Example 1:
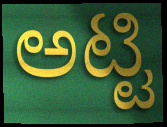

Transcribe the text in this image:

ಅಟ್ಟಿ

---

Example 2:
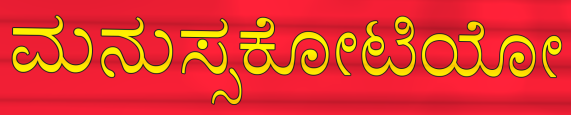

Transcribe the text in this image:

ಮನುಸ್ಸಕೋಟಿಯೋ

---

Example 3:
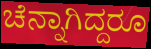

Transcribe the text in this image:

ಚೆನ್ನಾಗಿದ್ದರೂ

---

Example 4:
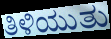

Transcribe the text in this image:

ತಿಳಿಯುತು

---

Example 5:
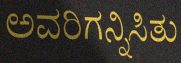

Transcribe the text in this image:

ಅವರಿಗನ್ನಿಸಿತು